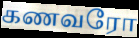
கணவரோ